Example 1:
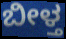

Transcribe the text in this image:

ಬೀಳ್ತ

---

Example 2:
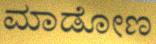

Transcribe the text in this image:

ಮಾಡೋಣ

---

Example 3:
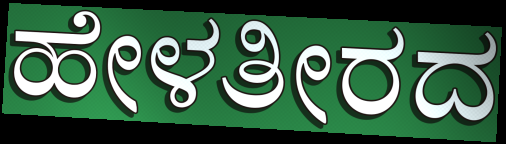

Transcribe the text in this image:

ಹೇಳತೀರದ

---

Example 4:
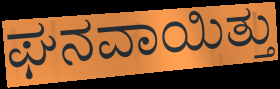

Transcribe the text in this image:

ಘನವಾಯಿತ್ತು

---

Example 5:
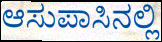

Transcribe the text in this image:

ಆಸುಪಾಸಿನಲ್ಲಿ